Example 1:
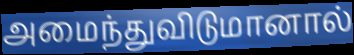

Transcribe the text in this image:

அமைந்துவிடுமானால்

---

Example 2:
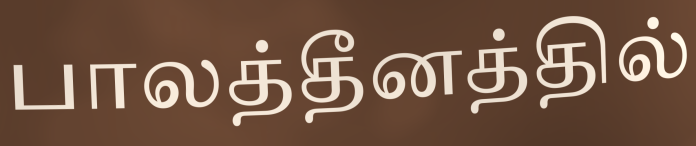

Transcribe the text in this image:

பாலத்தீனத்தில்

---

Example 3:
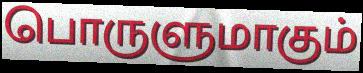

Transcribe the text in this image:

பொருளுமாகும்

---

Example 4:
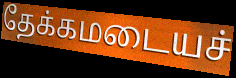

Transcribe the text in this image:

தேக்கமடையச்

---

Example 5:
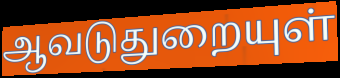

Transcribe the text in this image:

ஆவடுதுறையுள்